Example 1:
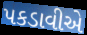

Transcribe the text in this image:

પકડાવીએ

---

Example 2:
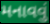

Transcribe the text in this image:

મનાવવું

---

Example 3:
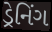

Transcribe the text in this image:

ડ્રેનિંગ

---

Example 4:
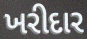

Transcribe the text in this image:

ખરીદાર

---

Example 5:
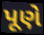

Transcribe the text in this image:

પૂણે